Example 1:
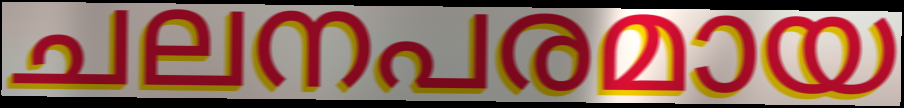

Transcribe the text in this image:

ചലനപരമായ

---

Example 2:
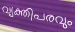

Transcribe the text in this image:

വ്യക്തിപരവും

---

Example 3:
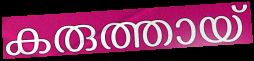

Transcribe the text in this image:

കരുത്തായ്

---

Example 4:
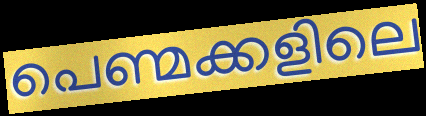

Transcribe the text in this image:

പെണ്മക്കളിലെ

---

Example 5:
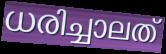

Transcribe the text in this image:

ധരിച്ചാലത്